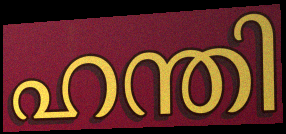
ഹന്തി